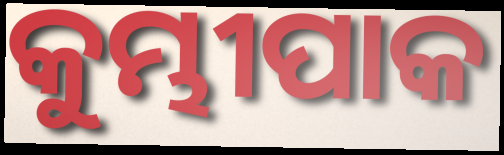
କୁମ୍ଭୀପାକ